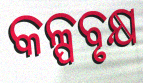
କଳ୍ପବୃକ୍ଷ